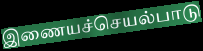
இணையச்செயல்பாடு